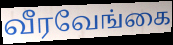
வீரவேங்கை